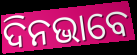
ଦିନଭାବେ